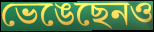
ভেঙেছেনও